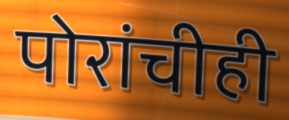
पोरांचीही